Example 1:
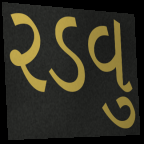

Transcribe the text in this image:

રડવુ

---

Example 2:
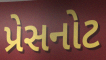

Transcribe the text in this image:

પ્રેસનોટ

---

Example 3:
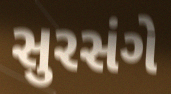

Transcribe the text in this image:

સુરસંગે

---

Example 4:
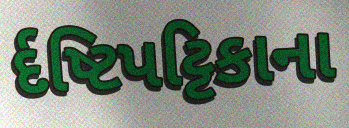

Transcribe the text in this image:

ર્દષ્ટિપટ્ટિકાના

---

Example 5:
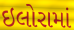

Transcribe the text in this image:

ઇલોરામાં